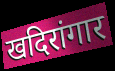
खदिरांगार